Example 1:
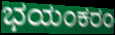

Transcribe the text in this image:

ಭಯಂಕರಂ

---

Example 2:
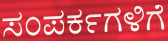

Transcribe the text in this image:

ಸಂಪರ್ಕಗಳಿಗೆ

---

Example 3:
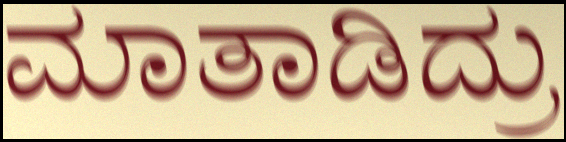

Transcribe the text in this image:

ಮಾತಾಡಿದ್ರು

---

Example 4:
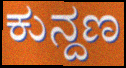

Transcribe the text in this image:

ಕುನ್ದಣ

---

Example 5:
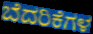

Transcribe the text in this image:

ಬೆದರಿಕೆಗಳ